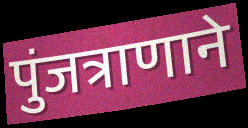
पुंजत्राणाने